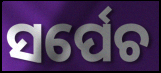
ସର୍ପେଚ